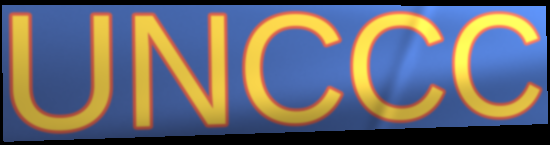
UNCCC